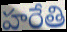
హరేతి